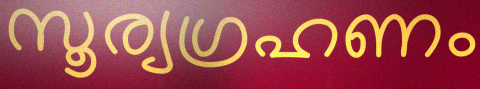
സൂര്യഗ്രഹണം